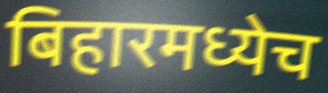
बिहारमध्येच